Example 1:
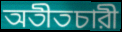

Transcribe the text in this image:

অতীতচারী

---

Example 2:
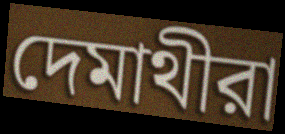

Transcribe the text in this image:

দেমাথীরা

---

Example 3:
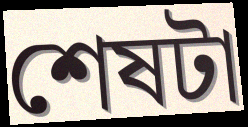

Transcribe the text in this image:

শেষটা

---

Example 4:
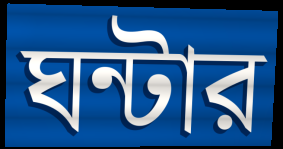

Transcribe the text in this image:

ঘন্টার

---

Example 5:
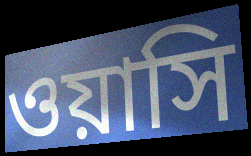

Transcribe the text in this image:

ওয়াসি